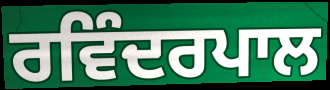
ਰਵਿੰਦਰਪਾਲ